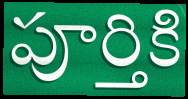
పూర్తికి